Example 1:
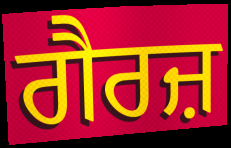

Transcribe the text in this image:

ਗੈਰਜ਼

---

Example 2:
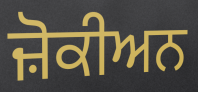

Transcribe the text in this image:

ਜ਼ੋਕੀਅਨ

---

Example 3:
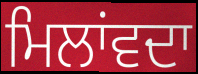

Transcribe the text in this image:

ਮਿਲਾਂਵਦਾ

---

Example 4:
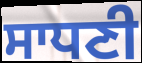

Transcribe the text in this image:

ਸਾਧਣੀ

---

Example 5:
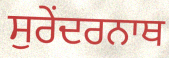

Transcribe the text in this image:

ਸੁਰੇਂਦਰਨਾਥ